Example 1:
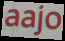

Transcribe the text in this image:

aajo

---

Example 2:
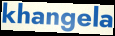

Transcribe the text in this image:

khangela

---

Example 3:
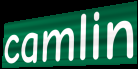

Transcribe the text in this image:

camlin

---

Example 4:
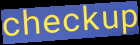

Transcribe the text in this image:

checkup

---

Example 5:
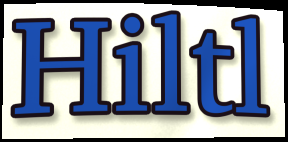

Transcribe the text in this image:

Hiltl